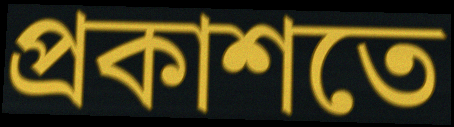
প্রকাশতে